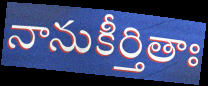
నానుకీర్తితాః